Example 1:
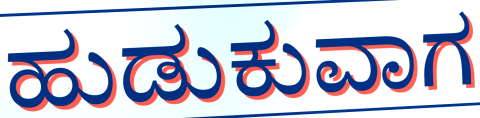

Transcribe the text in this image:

ಹುಡುಕುವಾಗ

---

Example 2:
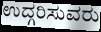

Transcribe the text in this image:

ಉದ್ಗರಿಸುವರು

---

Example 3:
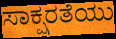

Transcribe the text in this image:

ಸಾಕ್ಷರತೆಯು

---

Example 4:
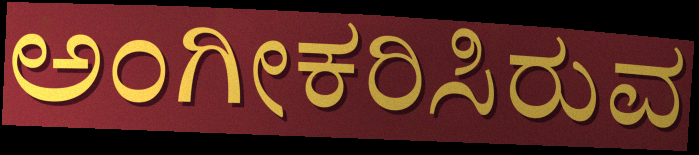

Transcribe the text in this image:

ಅಂಗೀಕರಿಸಿರುವ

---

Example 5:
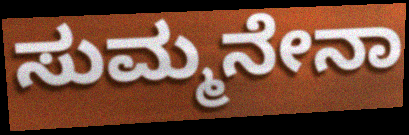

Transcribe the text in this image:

ಸುಮ್ಮನೇನಾ